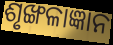
ଶୃଙ୍ଖଳାଜ୍ଞାନ